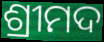
ଶ୍ରୀମଦ